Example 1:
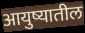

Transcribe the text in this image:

आयुष्यातील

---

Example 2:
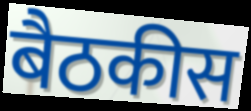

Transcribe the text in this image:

बैठकीस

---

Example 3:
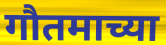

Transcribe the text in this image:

गौतमाच्या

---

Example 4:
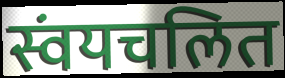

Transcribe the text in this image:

स्वंयचलित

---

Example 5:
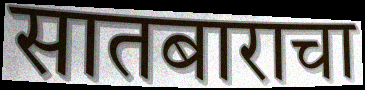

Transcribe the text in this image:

सातबाराचा